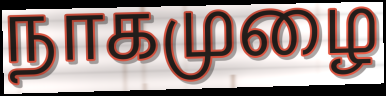
நாகமுழை